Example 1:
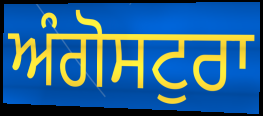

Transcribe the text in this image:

ਅੰਗੋਸਟੁਰਾ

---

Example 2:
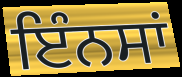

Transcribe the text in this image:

ਇੰਨਸਾਂ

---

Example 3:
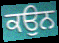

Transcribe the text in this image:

ਕਉਨ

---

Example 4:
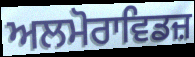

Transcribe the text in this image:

ਅਲਮੋਰਾਵਿਡਜ਼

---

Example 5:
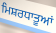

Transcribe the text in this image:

ਮਿਸ਼ਰਧਾਤੂਆਂ